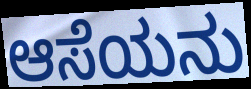
ಆಸೆಯನು